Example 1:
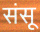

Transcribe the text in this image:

संसू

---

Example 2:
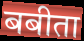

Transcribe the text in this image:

बबीता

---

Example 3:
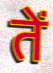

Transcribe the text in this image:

तें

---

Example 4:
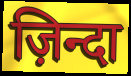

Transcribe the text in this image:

ज़िन्दा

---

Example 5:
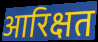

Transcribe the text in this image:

आरिक्षत